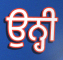
ਉਨ੍ਹੀ